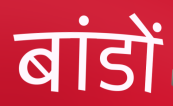
बांडों